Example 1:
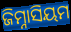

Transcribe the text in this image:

ଜିମ୍ନାସିୟମ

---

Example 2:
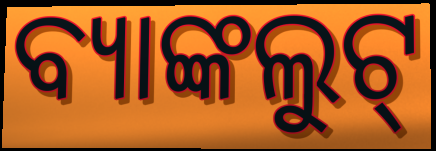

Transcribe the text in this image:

ବ୍ୟାଙ୍କଲୁଟ୍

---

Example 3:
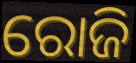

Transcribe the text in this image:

ରୋଜି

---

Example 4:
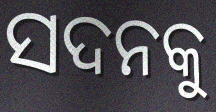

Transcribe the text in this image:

ସଦନକୁ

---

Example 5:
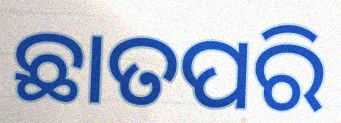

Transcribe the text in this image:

ଛାତପରି